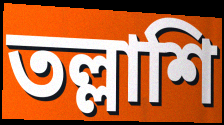
তল্লাশি